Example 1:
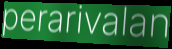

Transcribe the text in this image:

perarivalan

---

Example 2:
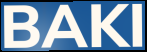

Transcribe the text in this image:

BAKI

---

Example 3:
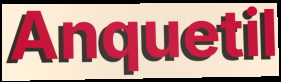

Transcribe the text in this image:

Anquetil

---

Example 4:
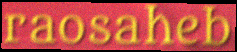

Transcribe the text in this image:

raosaheb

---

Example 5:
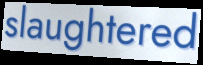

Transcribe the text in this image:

slaughtered